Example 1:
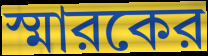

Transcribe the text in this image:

স্মারকের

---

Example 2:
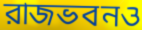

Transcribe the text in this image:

রাজভবনও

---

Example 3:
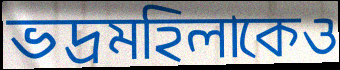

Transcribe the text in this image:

ভদ্রমহিলাকেও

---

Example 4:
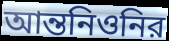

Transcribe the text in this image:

আন্তনিওনির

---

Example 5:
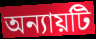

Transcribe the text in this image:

অন্যায়টি